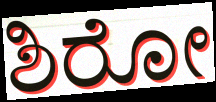
ಶಿರೋ